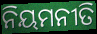
ନିୟମନୀତି